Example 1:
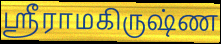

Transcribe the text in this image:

ஸ்ரீராமகிருஷ்ண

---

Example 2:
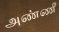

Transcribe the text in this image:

அண்ணீ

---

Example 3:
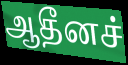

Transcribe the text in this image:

ஆதீனச்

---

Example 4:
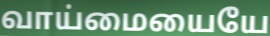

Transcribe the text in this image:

வாய்மையையே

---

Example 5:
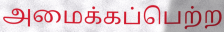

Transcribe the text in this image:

அமைக்கப்பெற்ற